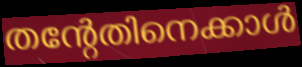
തന്റേതിനെക്കാൾ